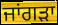
ਜਾਂਗੜਾ